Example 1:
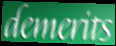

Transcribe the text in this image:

demerits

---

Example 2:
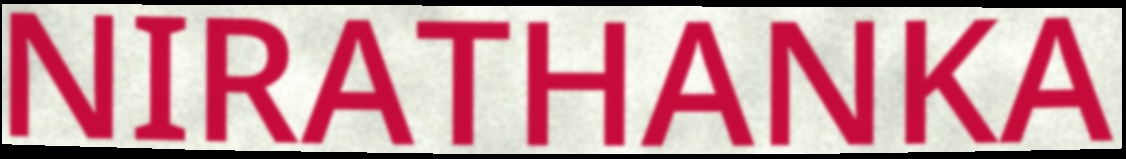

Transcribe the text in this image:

NIRATHANKA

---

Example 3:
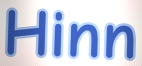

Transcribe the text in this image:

Hinn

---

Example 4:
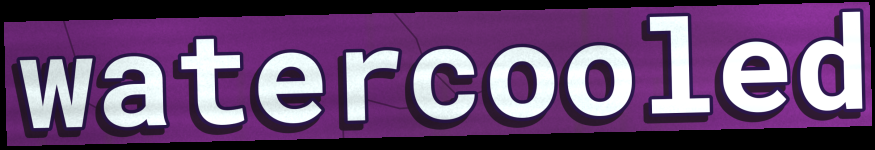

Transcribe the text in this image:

watercooled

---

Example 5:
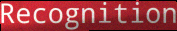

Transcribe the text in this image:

Recognition